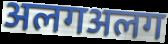
अलगअलग